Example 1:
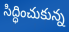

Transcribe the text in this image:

సిద్ధించుకున్న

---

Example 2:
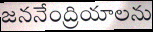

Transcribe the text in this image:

జననేంద్రియాలను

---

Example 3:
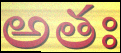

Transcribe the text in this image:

అతః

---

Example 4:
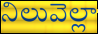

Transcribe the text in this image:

నిలువెల్లా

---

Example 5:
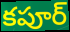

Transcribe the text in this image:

కపూర్